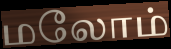
மலோம்